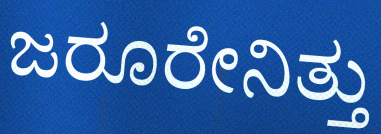
ಜರೂರೇನಿತ್ತು